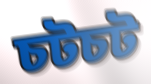
চটচট